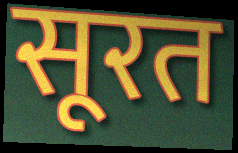
सूरत